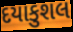
દયાકુશલ